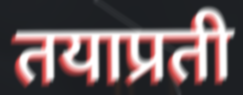
तयाप्रती